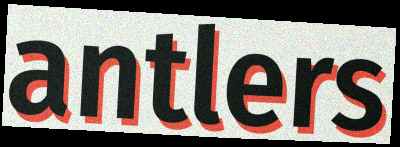
antlers